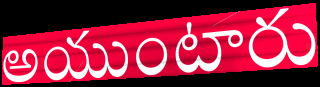
అయుంటారు